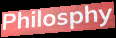
Philosphy